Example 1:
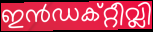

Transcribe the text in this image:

ഇൻഡക്റ്റീവ്ലി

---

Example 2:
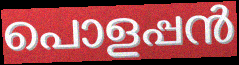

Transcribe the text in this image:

പൊളപ്പൻ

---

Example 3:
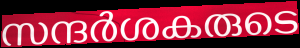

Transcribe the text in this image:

സന്ദർശകരുടെ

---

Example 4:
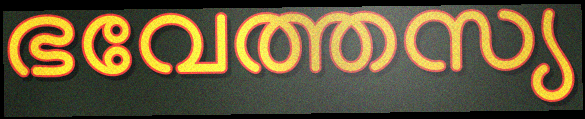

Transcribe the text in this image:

ഭവേത്തസ്യ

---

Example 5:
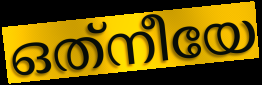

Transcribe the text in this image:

ഒത്‌നീയേ